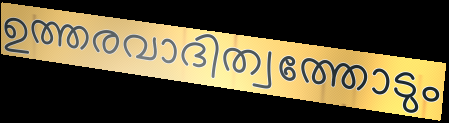
ഉത്തരവാദിത്വത്തോടും